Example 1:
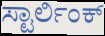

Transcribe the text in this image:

ಸ್ಟಾರ್ಲಿಂಕ್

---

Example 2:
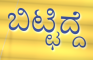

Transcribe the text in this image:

ಬಿಟ್ಟಿದ್ದೆ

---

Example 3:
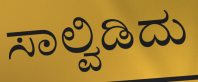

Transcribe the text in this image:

ಸಾಲ್ವಿಡಿದು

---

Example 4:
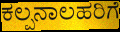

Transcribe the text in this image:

ಕಲ್ಪನಾಲಹರಿಗೆ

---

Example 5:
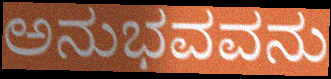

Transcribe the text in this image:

ಅನುಭವವನು